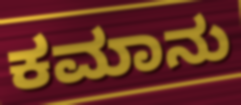
ಕಮಾನು